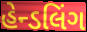
હેન્ડલિંગ